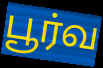
பூர்வ